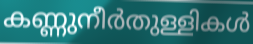
കണ്ണുനീർതുള്ളികൾ